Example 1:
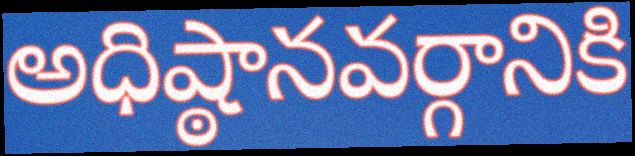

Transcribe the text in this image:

అధిష్ఠానవర్గానికి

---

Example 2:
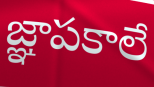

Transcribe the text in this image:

జ్ఞాపకాలే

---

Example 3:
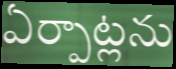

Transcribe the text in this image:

ఏర్పాట్లను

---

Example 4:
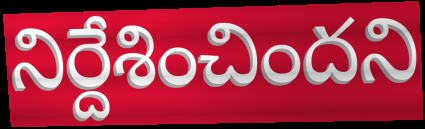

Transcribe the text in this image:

నిర్దేశించిందని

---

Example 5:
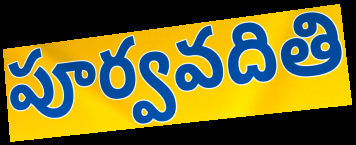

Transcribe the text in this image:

పూర్వవదితి